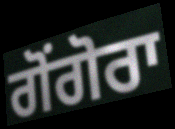
ਗੋਂਗੋਰਾ